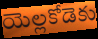
యెల్లకోడెకు